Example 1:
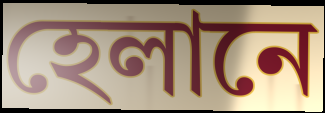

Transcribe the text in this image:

হেলানে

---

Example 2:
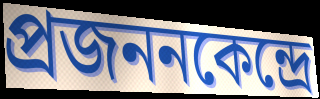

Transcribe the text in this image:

প্রজননকেন্দ্রে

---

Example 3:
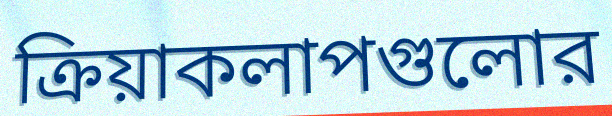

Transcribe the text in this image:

ক্রিয়াকলাপগুলোর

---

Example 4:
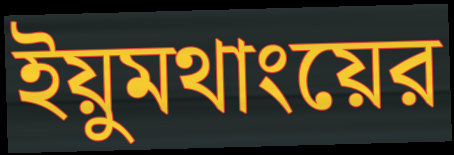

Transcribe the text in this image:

ইয়ুমথাংয়ের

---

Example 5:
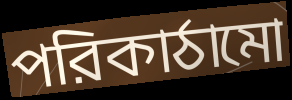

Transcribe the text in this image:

পরিকাঠামো